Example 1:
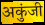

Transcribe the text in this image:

अकुंजी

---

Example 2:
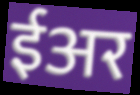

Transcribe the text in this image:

ईअर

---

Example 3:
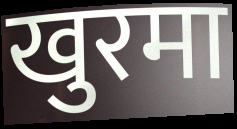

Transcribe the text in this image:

खुरमा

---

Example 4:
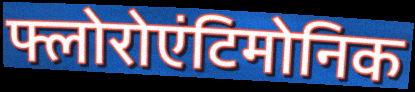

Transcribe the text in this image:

फ्लोरोएंटिमोनिक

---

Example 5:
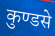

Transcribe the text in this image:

कुण्डसे